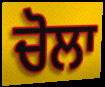
ਚੋਲਾ